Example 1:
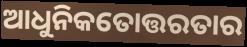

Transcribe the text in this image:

ଆଧୁନିକତୋତ୍ତରତାର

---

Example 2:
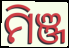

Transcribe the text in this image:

ମିଞ୍ଜ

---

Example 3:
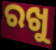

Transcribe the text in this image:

ରଖୁ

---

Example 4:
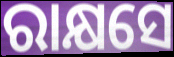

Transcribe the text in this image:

ରାକ୍ଷସେ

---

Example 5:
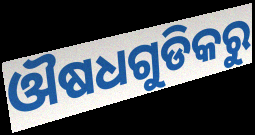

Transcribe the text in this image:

ଔଷଧଗୁଡିକରୁ